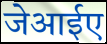
जेआईए